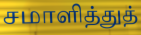
சமாளித்துத்